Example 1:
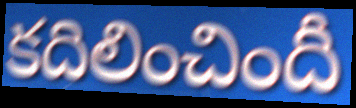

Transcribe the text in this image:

కదిలించిందీ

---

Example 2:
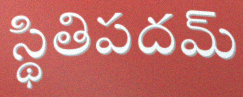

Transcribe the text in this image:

స్థితిపదమ్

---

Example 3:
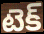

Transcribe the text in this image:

టెక్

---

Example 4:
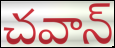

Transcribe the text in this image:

చవాన్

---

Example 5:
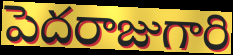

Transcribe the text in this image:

పెదరాజుగారి